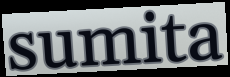
sumita